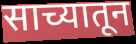
साच्यातून